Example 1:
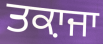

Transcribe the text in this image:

ਤਕ਼ਾਜਾ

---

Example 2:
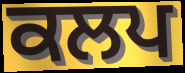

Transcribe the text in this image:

ਕਲਪ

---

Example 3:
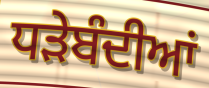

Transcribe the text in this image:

ਧੜੇਬੰਦੀਆਂ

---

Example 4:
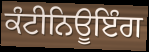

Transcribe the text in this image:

ਕੰਟੀਨਿਊਇੰਗ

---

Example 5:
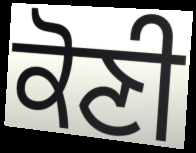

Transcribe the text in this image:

ਕੋਣੀ